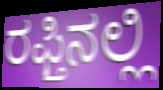
ರಫ್ತಿನಲ್ಲಿ